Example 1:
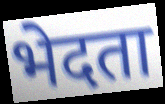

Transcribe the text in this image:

भेदता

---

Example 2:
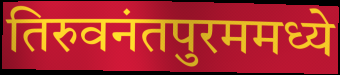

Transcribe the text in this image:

तिरुवनंतपुरममध्ये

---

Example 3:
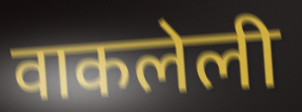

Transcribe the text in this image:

वाकलेली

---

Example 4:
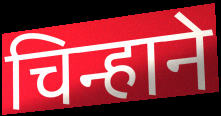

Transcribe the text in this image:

चिन्हाने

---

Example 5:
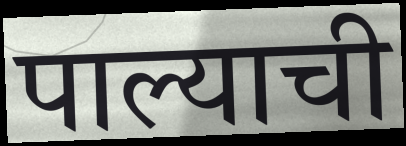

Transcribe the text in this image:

पाल्याची